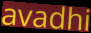
avadhi